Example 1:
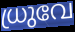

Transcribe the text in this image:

ധ്രുവേ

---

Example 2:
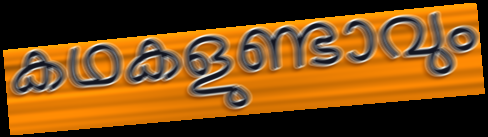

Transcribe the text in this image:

കഥകളുണ്ടാവും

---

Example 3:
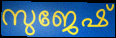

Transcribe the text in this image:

സുജേഷ്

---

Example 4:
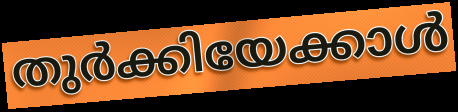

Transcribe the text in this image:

തുർക്കിയേക്കാൾ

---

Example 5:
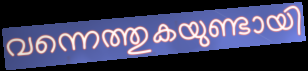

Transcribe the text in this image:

വന്നെത്തുകയുണ്ടായി